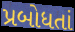
પ્રબોધતાં